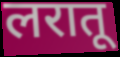
लरातू